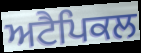
ਅਟੈਪਿਕਲ